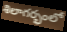
శిలాగర్భంలో